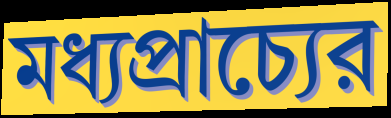
মধ্যপ্রাচ্যের